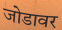
जोडावर